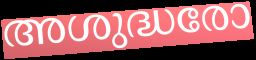
അശുദ്ധരോ